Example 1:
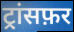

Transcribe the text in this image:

ट्रांसफ़र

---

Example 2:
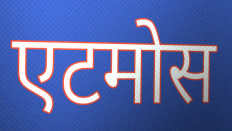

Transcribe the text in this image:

एटमोस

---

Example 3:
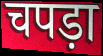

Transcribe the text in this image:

चपड़ा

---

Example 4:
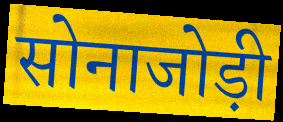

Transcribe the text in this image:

सोनाजोड़ी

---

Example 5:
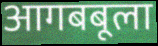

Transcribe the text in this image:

आगबबूला